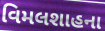
વિમલશાહના